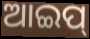
ଆଇପ୍